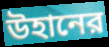
উহানের